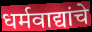
धर्मवाद्यांचे